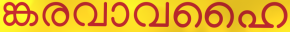
ങ്കരവാവഹൈ